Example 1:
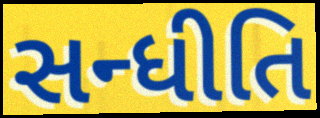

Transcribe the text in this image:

સન્ધીતિ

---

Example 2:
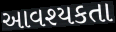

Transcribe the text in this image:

આવશ્યકતા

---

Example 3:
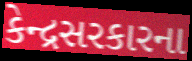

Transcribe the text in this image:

કેન્દ્રસરકારના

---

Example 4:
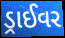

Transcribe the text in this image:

ડ્રાઈવર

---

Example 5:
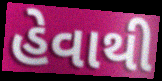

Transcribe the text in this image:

હેવાથી